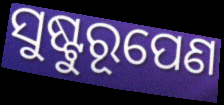
ସୁଷ୍ଟୁରୂପେଣ